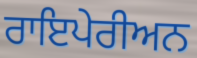
ਰਾਇਪੇਰੀਅਨ